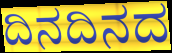
ದಿನದಿನದ